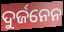
ଦୁର୍ଜନେନ